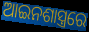
ଆଇନଶାସ୍ତ୍ରରେ